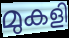
മുകളി